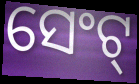
ସେଂଟ୍